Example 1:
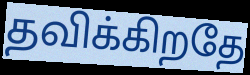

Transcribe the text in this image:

தவிக்கிறதே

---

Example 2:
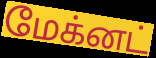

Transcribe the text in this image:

மேக்னட்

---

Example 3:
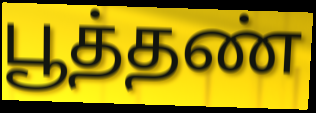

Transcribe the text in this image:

பூத்தண்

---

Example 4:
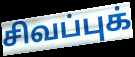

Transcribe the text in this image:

சிவப்புக்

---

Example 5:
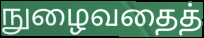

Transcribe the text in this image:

நுழைவதைத்